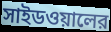
সাইডওয়ালের